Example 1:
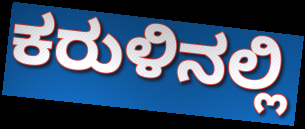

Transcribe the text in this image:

ಕರುಳಿನಲ್ಲಿ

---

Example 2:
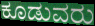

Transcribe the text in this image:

ಕೂಡುವರು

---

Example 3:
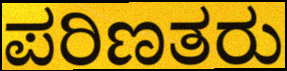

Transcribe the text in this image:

ಪರಿಣತರು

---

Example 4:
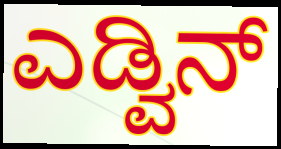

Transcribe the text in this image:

ಎಡ್ವಿನ್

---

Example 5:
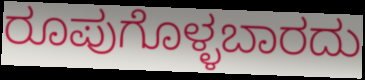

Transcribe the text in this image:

ರೂಪುಗೊಳ್ಳಬಾರದು